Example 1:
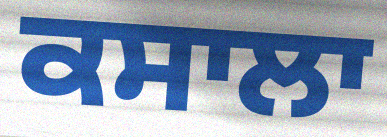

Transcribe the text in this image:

ਕਸਾਲਾ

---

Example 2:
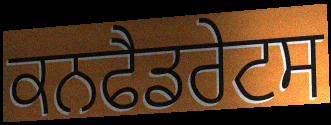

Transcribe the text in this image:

ਕਨਫੈਡਰੇਟਸ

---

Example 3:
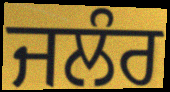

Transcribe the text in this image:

ਜਲੰਰ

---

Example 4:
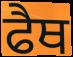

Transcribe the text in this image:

ਫੈਥ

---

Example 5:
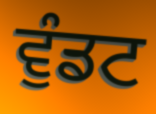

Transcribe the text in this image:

ਵੁੰਡਟ